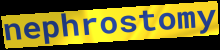
nephrostomy